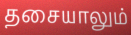
தசையாலும்